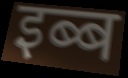
इब्ब